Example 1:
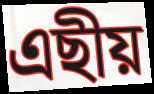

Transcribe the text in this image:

এছীয়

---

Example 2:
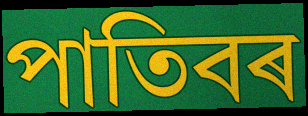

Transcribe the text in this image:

পাতিবৰ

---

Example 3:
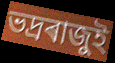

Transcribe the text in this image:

ভদ্ৰৰাজুই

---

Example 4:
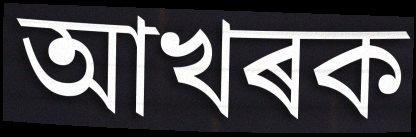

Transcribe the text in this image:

আখৰক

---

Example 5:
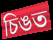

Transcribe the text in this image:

চিঙত